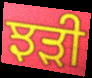
ਝੜੀ